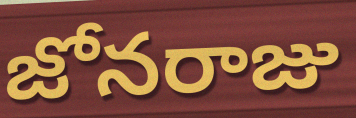
జోనరాజు